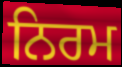
ਨਿਰਮ